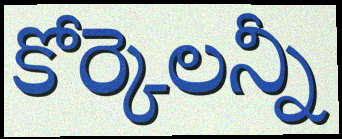
కోర్కెలన్నీ